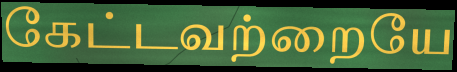
கேட்டவற்றையே